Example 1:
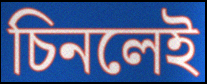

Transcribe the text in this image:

চিনলেই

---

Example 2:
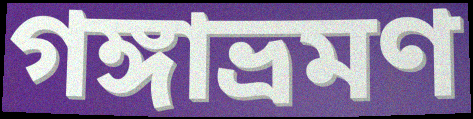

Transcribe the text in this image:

গঙ্গাভ্রমণ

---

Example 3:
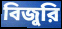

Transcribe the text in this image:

বিজুরি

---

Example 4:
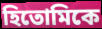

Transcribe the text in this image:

হিতোমিকে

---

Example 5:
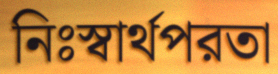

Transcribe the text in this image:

নিঃস্বার্থপরতা